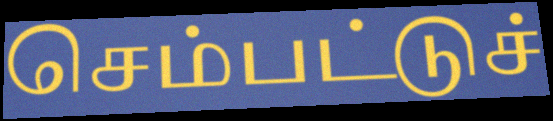
செம்பட்டுச்